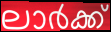
ലാർക്ക്